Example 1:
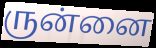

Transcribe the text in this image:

ருன்னை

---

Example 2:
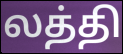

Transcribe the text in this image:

லத்தி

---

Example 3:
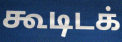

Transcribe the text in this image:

கூடிடக்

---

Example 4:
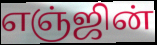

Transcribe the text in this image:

எஞ்ஜின்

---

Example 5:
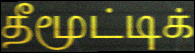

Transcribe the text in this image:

தீமூட்டிக்